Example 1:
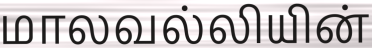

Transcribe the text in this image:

மாலவல்லியின்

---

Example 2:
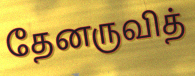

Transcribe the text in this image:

தேனருவித்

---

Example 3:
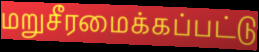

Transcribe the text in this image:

மறுசீரமைக்கப்பட்டு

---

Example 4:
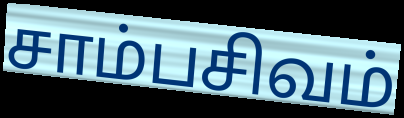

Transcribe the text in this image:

சாம்பசிவம்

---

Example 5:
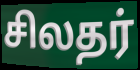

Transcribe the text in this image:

சிலதர்